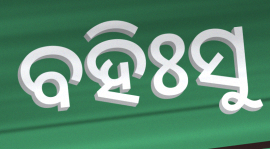
ବହିଃସୁ